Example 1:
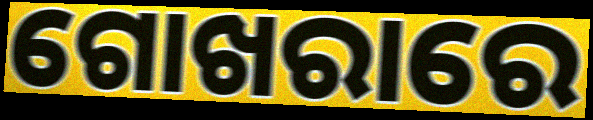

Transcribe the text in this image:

ଗୋଖରାରେ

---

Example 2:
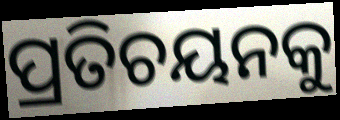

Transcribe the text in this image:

ପ୍ରତିଚୟନକୁ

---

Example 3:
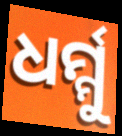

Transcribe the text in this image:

ଧର୍ମ୍ମୁ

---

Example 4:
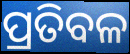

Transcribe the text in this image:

ପ୍ରତିବଳ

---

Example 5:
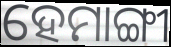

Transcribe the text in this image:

ହେମାଙ୍ଗୀ